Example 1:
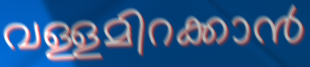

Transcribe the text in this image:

വള്ളമിറക്കാൻ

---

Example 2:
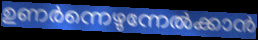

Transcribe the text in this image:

ഉണർന്നെഴുന്നേൽക്കാൻ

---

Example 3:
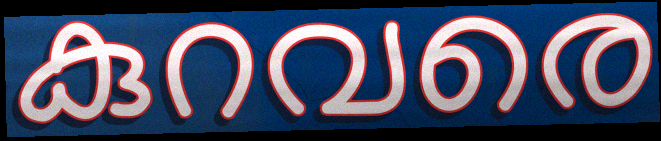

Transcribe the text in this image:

കുറവരെ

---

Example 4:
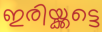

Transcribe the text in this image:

ഇരിയ്ക്കട്ടെ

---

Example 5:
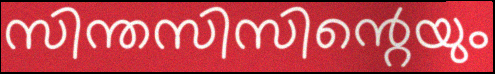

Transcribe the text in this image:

സിന്തസിസിന്റെയും